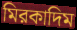
মিরকাদিম